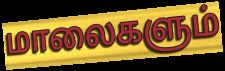
மாலைகளும்